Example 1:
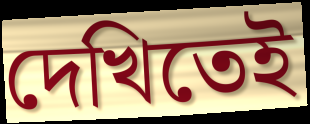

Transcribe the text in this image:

দেখিতেই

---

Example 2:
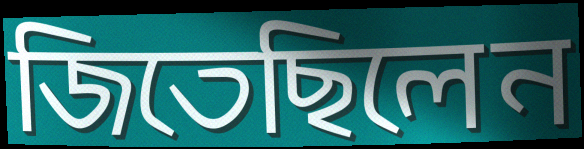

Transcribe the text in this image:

জিতেছিলেন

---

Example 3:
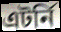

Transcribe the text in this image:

এটর্নি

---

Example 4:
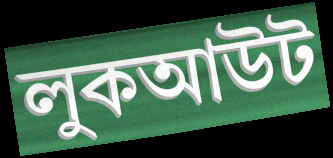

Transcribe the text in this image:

লুকআউট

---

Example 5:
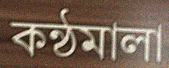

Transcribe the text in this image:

কন্ঠমালা